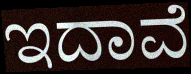
ಇದಾವೆ